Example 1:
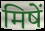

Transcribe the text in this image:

मिषें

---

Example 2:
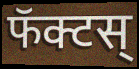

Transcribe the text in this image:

फॅक्टस्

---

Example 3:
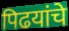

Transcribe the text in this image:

पिढयांचे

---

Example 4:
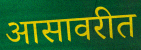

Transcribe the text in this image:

आसावरीत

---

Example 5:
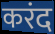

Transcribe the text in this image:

करंद